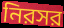
নিরসর